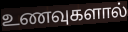
உணவுகளால்